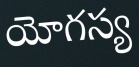
యోగస్య